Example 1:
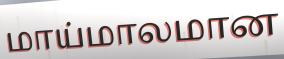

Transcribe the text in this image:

மாய்மாலமான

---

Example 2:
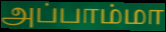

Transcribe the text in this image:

அப்பாம்மா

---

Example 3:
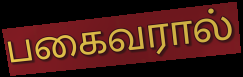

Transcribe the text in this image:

பகைவரால்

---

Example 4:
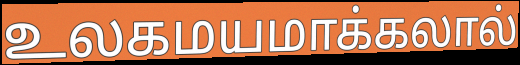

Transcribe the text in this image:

உலகமயமாக்கலால்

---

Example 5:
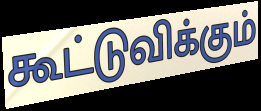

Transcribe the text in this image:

கூட்டுவிக்கும்